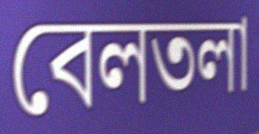
বেলতলা